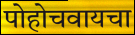
पोहोचवायचा